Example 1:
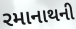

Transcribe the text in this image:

રમાનાથની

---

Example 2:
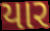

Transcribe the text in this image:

યાર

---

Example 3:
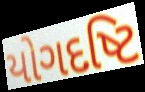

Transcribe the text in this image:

યોગદષ્ટિ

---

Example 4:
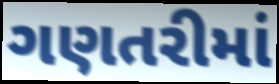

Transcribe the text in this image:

ગણતરીમાં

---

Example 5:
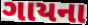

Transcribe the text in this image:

ગાયના